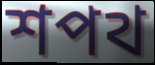
শপথ